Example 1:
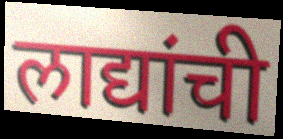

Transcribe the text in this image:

लाद्यांची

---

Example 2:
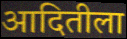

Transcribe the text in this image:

आदितीला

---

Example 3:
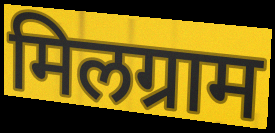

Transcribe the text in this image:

मिलग्राम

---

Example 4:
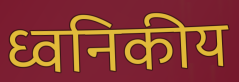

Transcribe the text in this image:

ध्वनिकीय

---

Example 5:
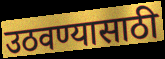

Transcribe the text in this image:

उठवण्यासाठी